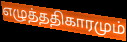
எழுத்ததிகாரமும்